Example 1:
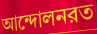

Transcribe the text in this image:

আন্দোলনরত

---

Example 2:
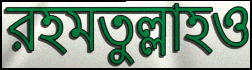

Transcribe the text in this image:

রহমতুল্লাহও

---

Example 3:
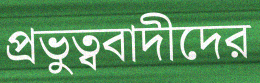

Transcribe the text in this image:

প্রভুত্ববাদীদের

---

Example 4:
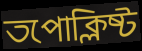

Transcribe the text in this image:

তপোক্লিষ্ট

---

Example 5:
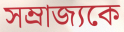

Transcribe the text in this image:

সম্রাজ্যকে